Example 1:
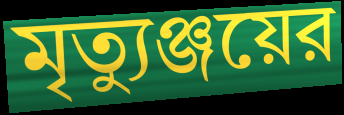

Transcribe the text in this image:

মৃত্যুঞ্জয়ের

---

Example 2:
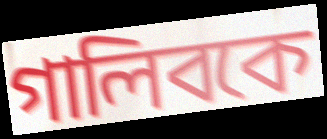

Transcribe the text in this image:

গালিবকে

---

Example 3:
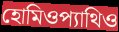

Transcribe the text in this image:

হোমিওপ্যাথিও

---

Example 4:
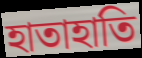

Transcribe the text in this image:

হাতাহাতি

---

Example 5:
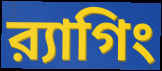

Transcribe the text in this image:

র‍্যাগিং